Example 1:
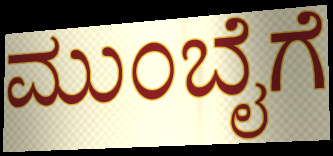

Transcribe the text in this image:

ಮುಂಬೈಗೆ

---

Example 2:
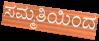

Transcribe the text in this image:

ಸಮ್ಮತಿಯಿಂದ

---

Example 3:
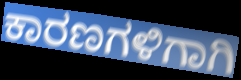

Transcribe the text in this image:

ಕಾರಣಗಳಿಗಾಗಿ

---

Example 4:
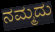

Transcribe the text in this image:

ನಮ್ಮದು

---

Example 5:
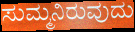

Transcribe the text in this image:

ಸುಮ್ಮನಿರುವುದು